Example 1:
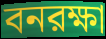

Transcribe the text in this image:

বনরক্ষা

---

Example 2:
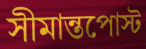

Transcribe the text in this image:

সীমান্তপোস্ট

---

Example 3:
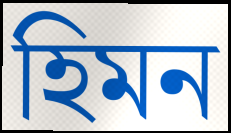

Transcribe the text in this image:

হিমন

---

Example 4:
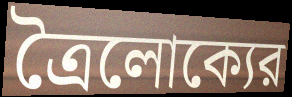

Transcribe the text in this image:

ত্রৈলোক্যের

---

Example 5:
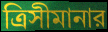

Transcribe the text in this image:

ত্রিসীমানার